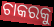
ଚାକରକୁ